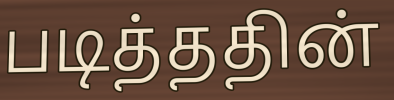
படித்ததின்